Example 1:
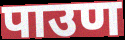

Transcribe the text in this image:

पाउण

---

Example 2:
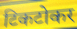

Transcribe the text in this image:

टिकटोकर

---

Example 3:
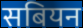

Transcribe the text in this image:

सबियन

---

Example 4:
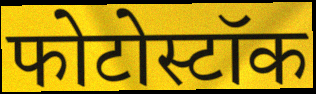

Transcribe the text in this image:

फोटोस्टॉक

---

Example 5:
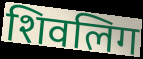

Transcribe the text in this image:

शिवलिग